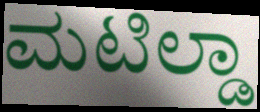
ಮಟಿಲ್ಡಾ